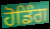
ਹੋਡਿੰਗ